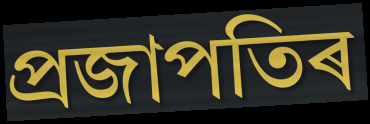
প্ৰজাপতিৰ